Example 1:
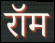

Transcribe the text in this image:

रॉम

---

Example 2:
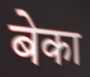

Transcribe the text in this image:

बेका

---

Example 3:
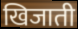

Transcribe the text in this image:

खिजाती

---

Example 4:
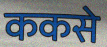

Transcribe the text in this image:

ककसे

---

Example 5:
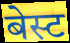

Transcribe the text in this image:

बेस्‍ट